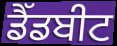
ਡੈੱਡਬੀਟ